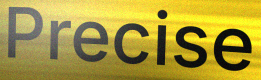
Precise